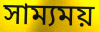
সাম্যময়